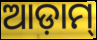
ଆଡ଼ାମ୍